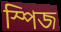
স্পিজ